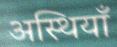
अस्थियाँ